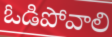
ఓడిపోవాలి